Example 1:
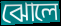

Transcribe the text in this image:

ঝোলে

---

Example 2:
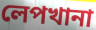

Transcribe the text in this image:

লেপখানা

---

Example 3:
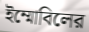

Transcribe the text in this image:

ইম্মোবিলের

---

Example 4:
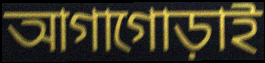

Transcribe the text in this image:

আগাগোড়াই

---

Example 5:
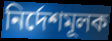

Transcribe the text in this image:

নির্দেশমূলক